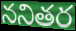
ననితర